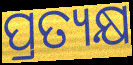
ପ୍ରତ୍ୟକ୍ଷ